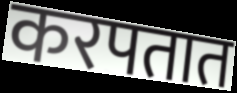
करपतात